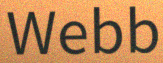
Webb